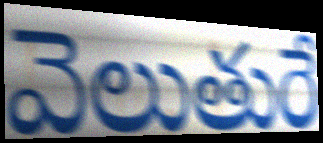
వెలుతురే